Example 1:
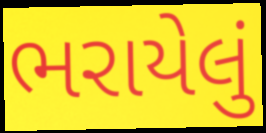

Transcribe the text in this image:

ભરાયેલું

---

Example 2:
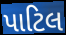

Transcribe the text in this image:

પાટિલ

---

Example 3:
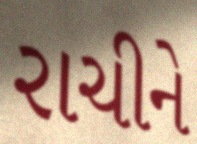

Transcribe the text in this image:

રાચીને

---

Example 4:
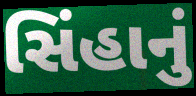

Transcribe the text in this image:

સિંહાનું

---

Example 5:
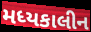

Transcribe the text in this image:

મધ્યકાલીન